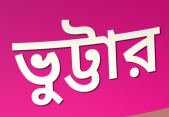
ভুট্টার